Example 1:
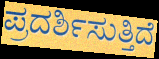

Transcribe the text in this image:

ಪ್ರದರ್ಶಿಸುತ್ತಿದೆ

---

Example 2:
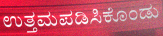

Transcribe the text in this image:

ಉತ್ತಮಪಡಿಸಿಕೊಂಡು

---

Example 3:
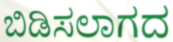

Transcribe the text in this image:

ಬಿಡಿಸಲಾಗದ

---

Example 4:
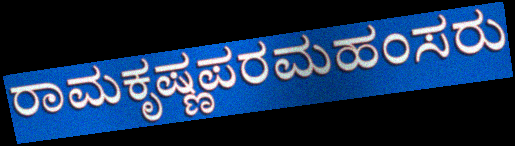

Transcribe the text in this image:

ರಾಮಕೃಷ್ಣಪರಮಹಂಸರು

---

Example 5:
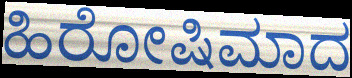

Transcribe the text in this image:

ಹಿರೋಷಿಮಾದ